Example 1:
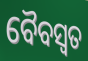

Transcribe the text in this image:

ବୈବସ୍ଵତ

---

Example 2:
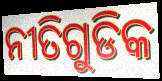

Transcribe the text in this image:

ନୀତିଗୁଡିକ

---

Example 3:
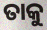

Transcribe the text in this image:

ତାକୁ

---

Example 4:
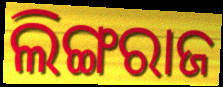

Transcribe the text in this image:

ଲିଙ୍ଗରାଜ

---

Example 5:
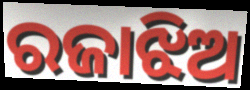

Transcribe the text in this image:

ରଜାଝିଅ